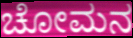
ಚೋಮನ